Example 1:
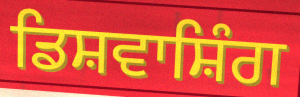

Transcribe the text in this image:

ਡਿਸ਼ਵਾਸ਼ਿੰਗ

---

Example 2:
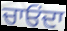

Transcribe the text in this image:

ਚਾਓਂਦਾ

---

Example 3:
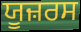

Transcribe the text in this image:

ਯੂਜ਼ਰਸ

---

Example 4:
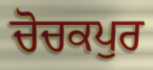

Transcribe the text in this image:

ਚੋਚਕਪੁਰ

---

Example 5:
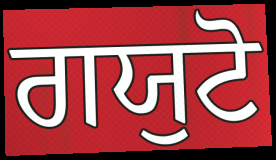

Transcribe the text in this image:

ਗਯੁਟੋ